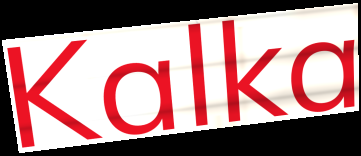
Kalka